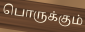
பொருக்கும்